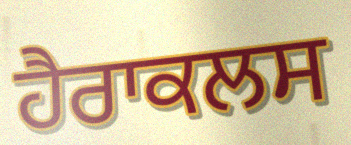
ਹੈਰਾਕਲਸ